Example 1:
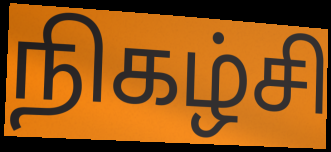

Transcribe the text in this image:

நிகழ்சி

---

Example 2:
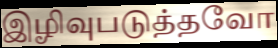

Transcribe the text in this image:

இழிவுபடுத்தவோ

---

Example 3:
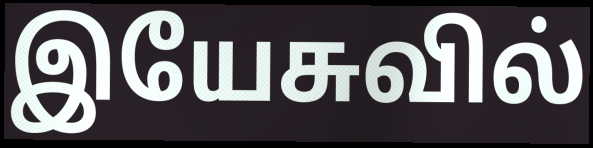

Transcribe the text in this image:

இயேசுவில்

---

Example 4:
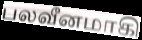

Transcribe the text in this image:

பலவீனமாகி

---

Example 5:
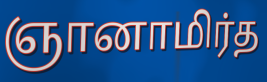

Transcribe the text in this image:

ஞானாமிர்த